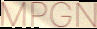
MPGN